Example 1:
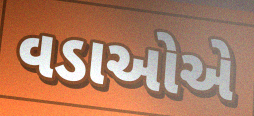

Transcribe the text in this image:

વડાઓએ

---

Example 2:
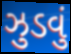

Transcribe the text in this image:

ઝુડવું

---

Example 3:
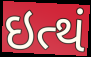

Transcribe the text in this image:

ઇત્થં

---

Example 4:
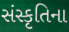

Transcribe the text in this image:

સંસ્કૃતિના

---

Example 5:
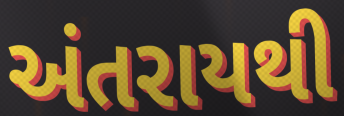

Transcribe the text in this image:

અંતરાયથી